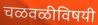
चळवळीविषयी